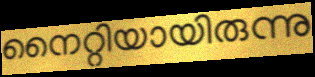
നൈറ്റിയായിരുന്നു